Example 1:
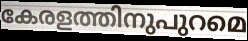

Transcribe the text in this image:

കേരളത്തിനുപുറമെ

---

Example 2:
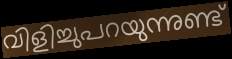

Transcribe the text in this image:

വിളിച്ചുപറയുന്നുണ്ട്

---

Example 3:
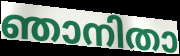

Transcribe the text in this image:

ഞാനിതാ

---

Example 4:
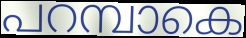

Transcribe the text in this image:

പറമ്പാകെ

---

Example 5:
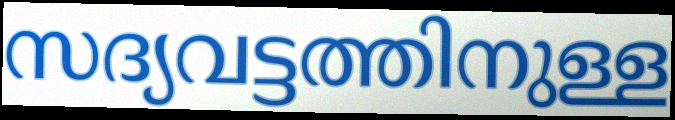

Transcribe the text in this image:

സദ്യവട്ടത്തിനുള്ള